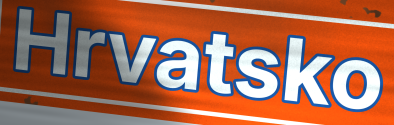
Hrvatsko